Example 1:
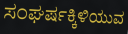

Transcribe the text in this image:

ಸಂಘರ್ಷಕ್ಕಿಳಿಯುವ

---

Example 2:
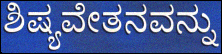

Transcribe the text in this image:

ಶಿಷ್ಯವೇತನವನ್ನು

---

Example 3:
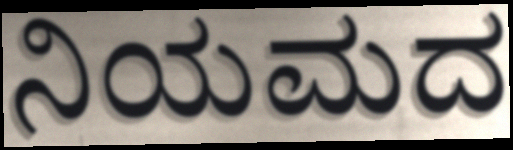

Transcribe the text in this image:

ನಿಯಮದ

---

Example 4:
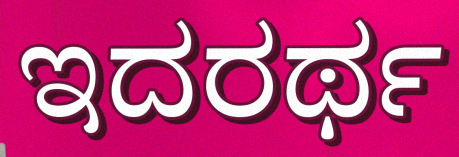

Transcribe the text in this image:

ಇದರರ್ಥ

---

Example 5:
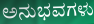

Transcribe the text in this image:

ಅನುಭವಗಳು